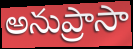
అనుప్రాసా